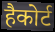
हैकोर्ट